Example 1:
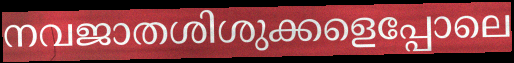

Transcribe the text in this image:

നവജാതശിശുക്കളെപ്പോലെ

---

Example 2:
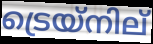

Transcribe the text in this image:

ട്രെയ്നില്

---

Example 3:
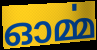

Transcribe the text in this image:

ഓൎമ്മ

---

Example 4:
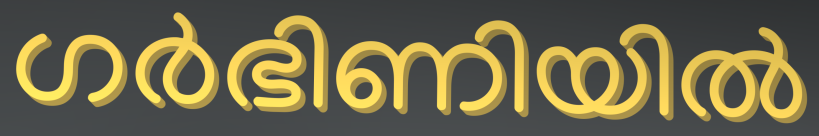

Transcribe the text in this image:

ഗർഭിണിയിൽ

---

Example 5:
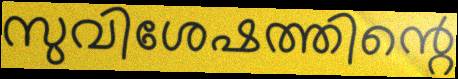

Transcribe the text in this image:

സുവിശേഷത്തിന്റെ